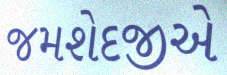
જમશેદજીએ